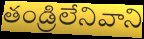
తండ్రిలేనివాని